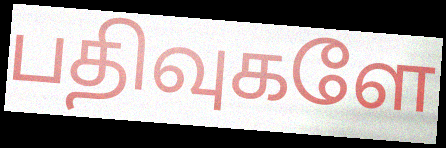
பதிவுகளே